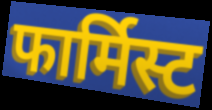
फार्मिस्ट